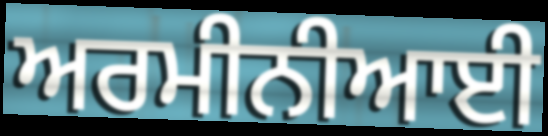
ਅਰਮੀਨੀਆਈ